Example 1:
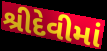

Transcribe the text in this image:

શ્રીદેવીમાં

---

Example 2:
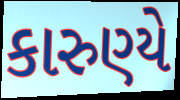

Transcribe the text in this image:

કારુણ્યે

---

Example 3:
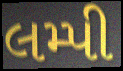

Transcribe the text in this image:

લમ્પી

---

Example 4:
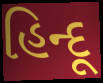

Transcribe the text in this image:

હિન્દૂ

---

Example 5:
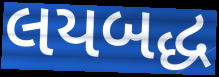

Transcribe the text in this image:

લયબદ્ધ